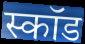
स्कॉड